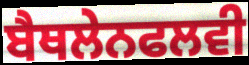
ਬੈਥਲੇਨਫਲਵੀ